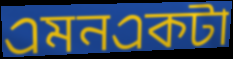
এমনএকটা